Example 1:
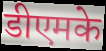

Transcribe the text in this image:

डीएमके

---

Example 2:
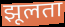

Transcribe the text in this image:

झूलता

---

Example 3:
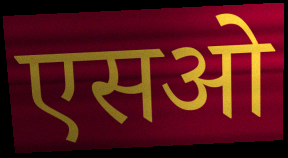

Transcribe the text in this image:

एसओ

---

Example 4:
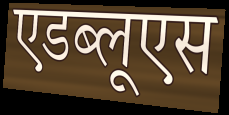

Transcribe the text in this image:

एडब्लूएस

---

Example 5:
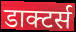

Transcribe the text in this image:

डाक्टर्स